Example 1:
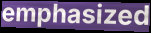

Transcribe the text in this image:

emphasized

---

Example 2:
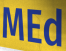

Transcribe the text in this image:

MEd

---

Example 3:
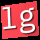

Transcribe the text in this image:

lg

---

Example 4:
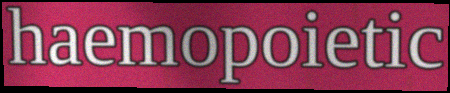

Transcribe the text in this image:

haemopoietic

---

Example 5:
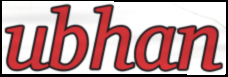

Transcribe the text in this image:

ubhan